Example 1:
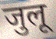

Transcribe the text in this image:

जुलू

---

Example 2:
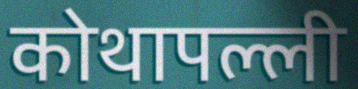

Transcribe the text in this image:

कोथापल्ली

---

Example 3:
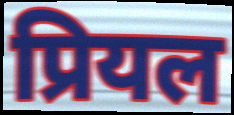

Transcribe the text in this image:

प्रियल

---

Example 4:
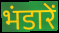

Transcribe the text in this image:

भंडारें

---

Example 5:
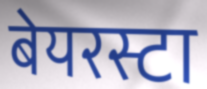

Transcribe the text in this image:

बेयरस्टा